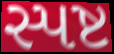
સ્પષ્ટ